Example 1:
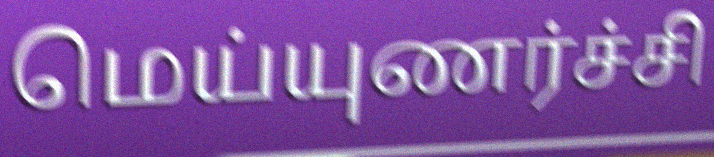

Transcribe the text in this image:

மெய்யுணர்ச்சி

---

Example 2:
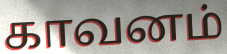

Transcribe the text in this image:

காவனம்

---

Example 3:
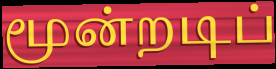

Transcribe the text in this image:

மூன்றடிப்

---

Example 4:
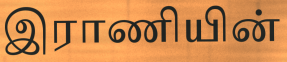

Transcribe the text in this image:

இராணியின்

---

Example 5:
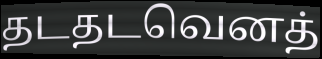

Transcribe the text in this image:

தடதடவெனத்